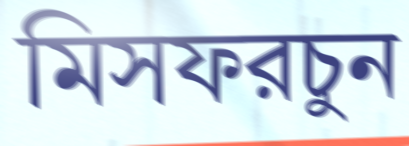
মিসফরচুন